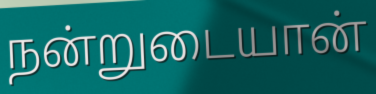
நன்றுடையான்